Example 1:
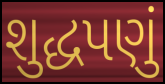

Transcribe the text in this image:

શુદ્ધપણું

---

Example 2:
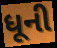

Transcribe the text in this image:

ધૂની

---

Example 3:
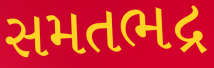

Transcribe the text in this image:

સમતભદ્ર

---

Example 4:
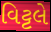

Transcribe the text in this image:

વિટ્ટલે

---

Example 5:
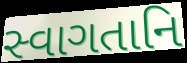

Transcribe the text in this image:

સ્વાગતાનિ